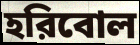
হরিবোল